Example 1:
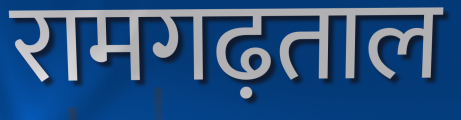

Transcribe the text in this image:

रामगढ़ताल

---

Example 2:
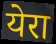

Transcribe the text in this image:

येरा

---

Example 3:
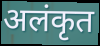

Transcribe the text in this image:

अलंकृत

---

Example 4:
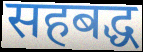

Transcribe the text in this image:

सहबद्ध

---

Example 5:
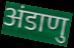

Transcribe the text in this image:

अंडाणु